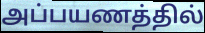
அப்பயணத்தில்